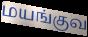
மயங்குவ